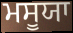
ਮਸੂਯਾ